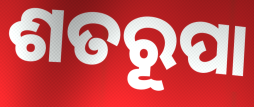
ଶତରୂପା